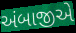
અંબાજીએ